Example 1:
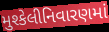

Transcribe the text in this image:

મુશ્કેલીનિવારણમાં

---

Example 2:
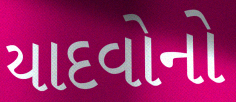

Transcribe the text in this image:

યાદવોનો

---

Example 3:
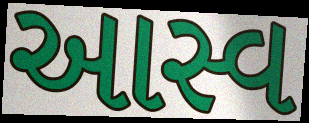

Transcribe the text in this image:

આસ્વ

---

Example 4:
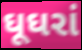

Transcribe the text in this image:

ઘૂઘરાં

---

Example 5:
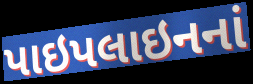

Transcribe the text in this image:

પાઇપલાઇનનાં